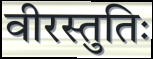
वीरस्तुतिः